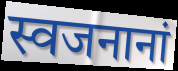
स्वजनानां